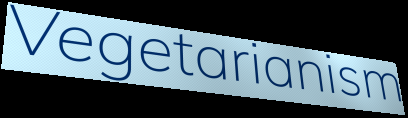
Vegetarianism